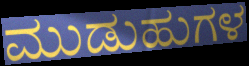
ಮುಡುಹುಗಳ